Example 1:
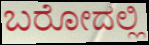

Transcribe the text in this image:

ಬರೋದಲ್ಲಿ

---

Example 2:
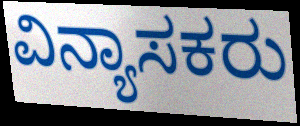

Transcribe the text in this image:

ವಿನ್ಯಾಸಕರು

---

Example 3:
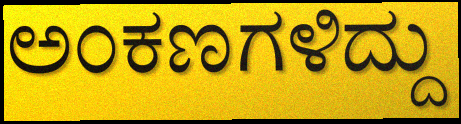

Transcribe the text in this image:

ಅಂಕಣಗಳಿದ್ದು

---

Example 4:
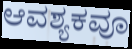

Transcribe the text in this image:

ಆವಶ್ಯಕವೂ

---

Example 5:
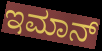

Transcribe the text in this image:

ಇಮಾನ್